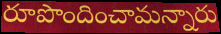
రూపొందించామన్నారు